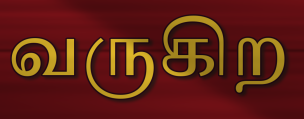
வருகிற